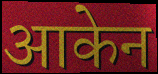
आकेन